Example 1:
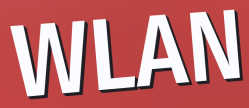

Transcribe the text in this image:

WLAN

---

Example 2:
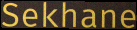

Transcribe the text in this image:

Sekhane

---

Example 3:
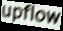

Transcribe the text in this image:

upflow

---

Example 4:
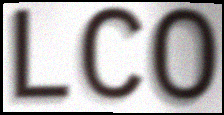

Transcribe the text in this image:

LCO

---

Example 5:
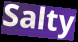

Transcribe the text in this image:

Salty